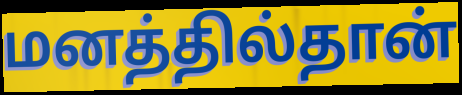
மனத்தில்தான்